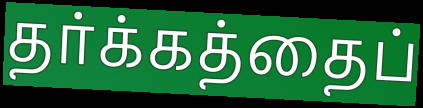
தர்க்கத்தைப்